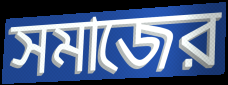
সমাজের